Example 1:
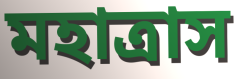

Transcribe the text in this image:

মহাত্রাস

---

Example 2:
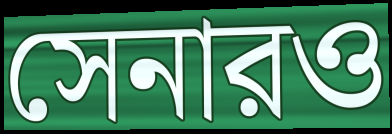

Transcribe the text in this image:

সেনারও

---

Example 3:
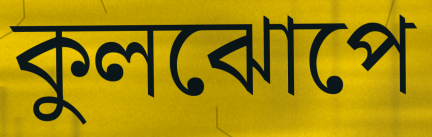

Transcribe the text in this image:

কুলঝোপে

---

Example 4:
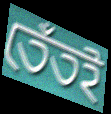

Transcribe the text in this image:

তেঁতই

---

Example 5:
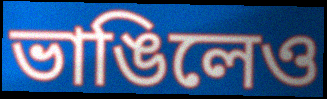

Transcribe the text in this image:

ভাঙিলেও